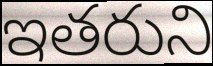
ఇతరుని